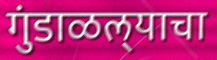
गुंडाळल्याचा